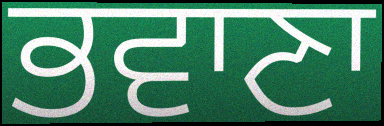
ਭਵਾਣਾ